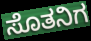
ಸೊತನಿಗ